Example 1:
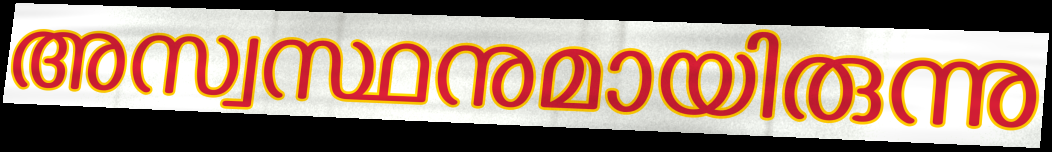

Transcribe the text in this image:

അസ്വസ്ഥനുമായിരുന്നു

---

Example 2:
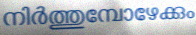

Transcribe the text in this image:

നിർത്തുമ്പോഴേക്കും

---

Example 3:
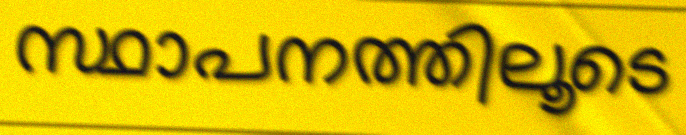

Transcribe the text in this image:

സ്ഥാപനത്തിലൂടെ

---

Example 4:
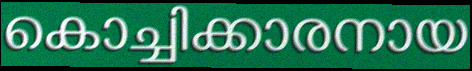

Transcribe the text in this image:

കൊച്ചിക്കാരനായ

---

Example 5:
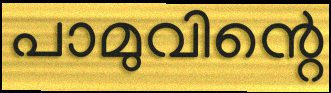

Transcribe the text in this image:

പാമുവിന്റെ